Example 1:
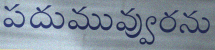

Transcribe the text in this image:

పదుమువ్వురను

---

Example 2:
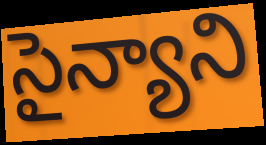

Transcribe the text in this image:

సైన్యాని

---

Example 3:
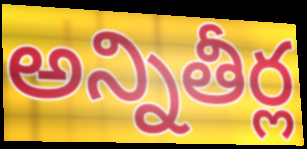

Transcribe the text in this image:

అన్నితీర్ల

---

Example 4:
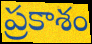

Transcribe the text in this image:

ప్రకాశం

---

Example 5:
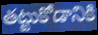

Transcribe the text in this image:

తట్టుకోడానికి